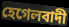
হেগেলবাদী